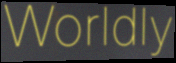
Worldly